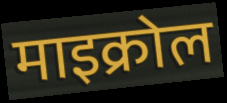
माइक्रोल